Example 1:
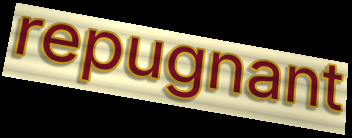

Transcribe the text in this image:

repugnant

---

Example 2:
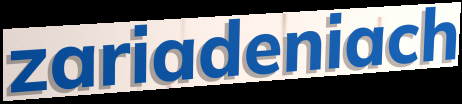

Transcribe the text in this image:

zariadeniach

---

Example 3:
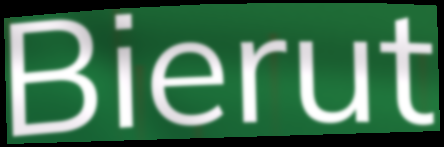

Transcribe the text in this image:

Bierut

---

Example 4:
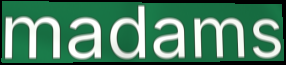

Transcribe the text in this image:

madams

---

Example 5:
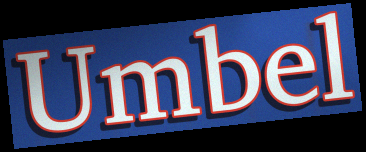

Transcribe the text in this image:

Umbel